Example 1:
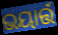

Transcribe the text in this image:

ଭୟାର୍ତ୍ତ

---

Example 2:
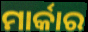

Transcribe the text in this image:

ମାର୍କାର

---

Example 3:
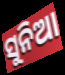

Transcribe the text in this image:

ସୁନିଆ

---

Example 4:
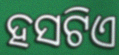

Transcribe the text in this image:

ହସଟିଏ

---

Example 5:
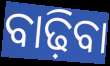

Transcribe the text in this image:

ବାଢ଼ିବା